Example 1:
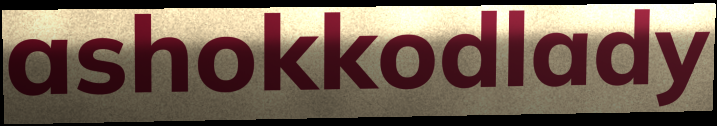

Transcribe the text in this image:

ashokkodlady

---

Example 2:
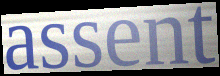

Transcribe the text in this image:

assent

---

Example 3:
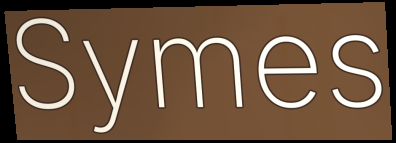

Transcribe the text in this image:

Symes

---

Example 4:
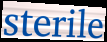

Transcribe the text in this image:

sterile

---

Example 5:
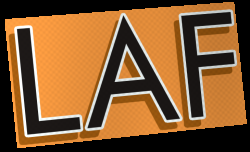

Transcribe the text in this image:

LAF